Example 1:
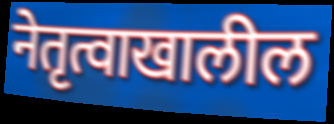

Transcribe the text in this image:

नेतृत्वाखालील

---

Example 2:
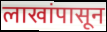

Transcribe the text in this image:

लाखांपासून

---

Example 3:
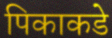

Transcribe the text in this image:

पिकाकडे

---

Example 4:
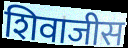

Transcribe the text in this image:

शिवाजीस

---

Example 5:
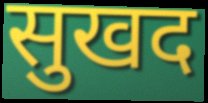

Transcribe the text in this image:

सुखद